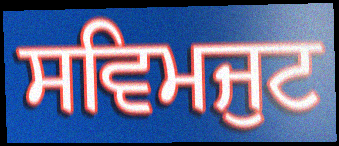
ਸਵਿਮਜੁਟ